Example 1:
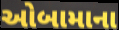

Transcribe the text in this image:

ઓબામાના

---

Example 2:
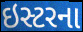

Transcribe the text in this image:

ઇસ્ટરના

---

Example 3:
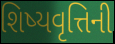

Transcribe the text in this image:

શિષ્યવૃત્તિની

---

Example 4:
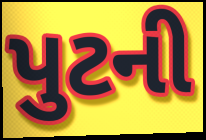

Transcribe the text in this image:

પુટની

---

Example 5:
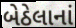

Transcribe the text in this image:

બેઠેલાનાં